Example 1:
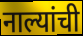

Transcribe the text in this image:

नाल्यांची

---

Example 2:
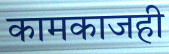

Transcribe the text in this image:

कामकाजही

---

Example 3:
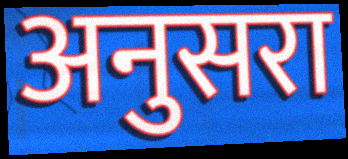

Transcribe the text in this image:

अनुसरा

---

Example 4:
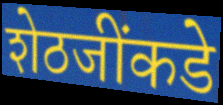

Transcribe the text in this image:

शेठजींकडे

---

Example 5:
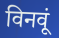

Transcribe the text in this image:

विनवूं